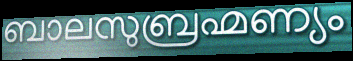
ബാലസുബ്രഹ്മണ്യം